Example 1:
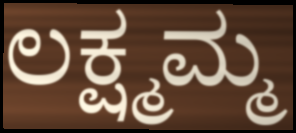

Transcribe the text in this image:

ಲಕ್ಷ್ಮಮ್ಮ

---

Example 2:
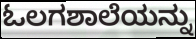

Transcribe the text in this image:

ಓಲಗಶಾಲೆಯನ್ನು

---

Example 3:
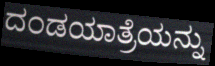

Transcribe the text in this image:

ದಂಡಯಾತ್ರೆಯನ್ನು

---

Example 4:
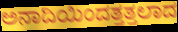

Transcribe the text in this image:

ಅನಾದಿಯಿಂದತ್ತತ್ತಲಾದ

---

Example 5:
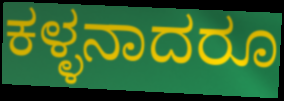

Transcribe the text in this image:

ಕಳ್ಳನಾದರೂ